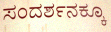
ಸಂದರ್ಶನಕ್ಕೂ